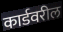
कार्डवरील